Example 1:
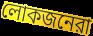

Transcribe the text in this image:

লোকজনেরা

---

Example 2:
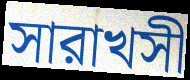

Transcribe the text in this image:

সারাখসী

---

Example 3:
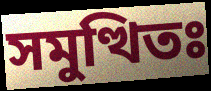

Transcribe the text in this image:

সমুত্থিতঃ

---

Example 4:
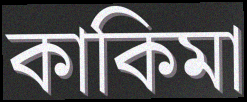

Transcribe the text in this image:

কাকিমা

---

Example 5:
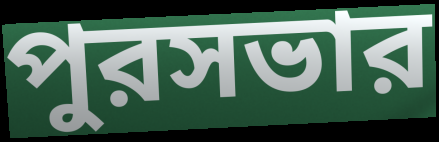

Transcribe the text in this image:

পুরসভার